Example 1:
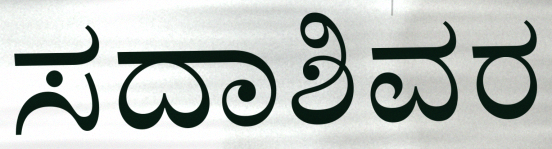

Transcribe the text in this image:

ಸದಾಶಿವರ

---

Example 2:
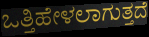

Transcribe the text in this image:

ಒತ್ತಿಹೇಳಲಾಗುತ್ತದೆ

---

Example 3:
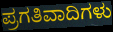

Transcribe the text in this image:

ಪ್ರಗತಿವಾದಿಗಳು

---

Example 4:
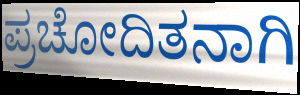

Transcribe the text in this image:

ಪ್ರಚೋದಿತನಾಗಿ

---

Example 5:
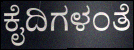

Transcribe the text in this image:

ಕೈದಿಗಳಂತೆ